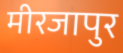
मीरजापुर